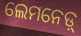
ଲେମନେଡ଼୍